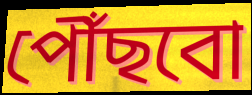
পৌঁছবো